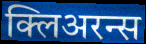
क्लिअरन्स